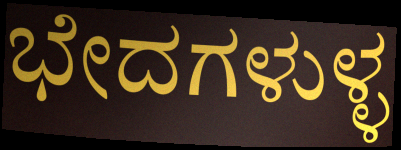
ಭೇದಗಳುಳ್ಳ